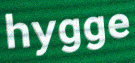
hygge